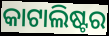
କାଟାଲିଷ୍ଟର